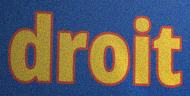
droit